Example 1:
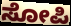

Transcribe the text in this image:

ಸೋಪಿ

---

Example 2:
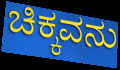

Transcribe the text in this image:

ಚಿಕ್ಕವನು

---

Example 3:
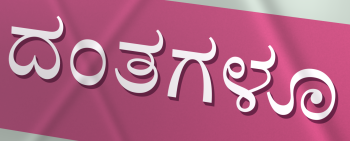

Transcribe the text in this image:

ದಂತಗಳೂ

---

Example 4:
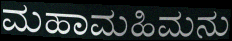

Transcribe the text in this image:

ಮಹಾಮಹಿಮನು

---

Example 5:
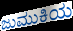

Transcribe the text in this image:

ಜುಮುಕಿಯ